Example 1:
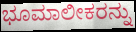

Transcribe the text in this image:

ಭೂಮಾಲೀಕರನ್ನು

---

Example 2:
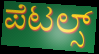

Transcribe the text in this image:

ಪೆಟಲ್ಸ್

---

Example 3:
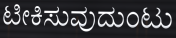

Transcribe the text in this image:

ಟೀಕಿಸುವುದುಂಟು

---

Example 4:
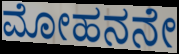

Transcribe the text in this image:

ಮೋಹನನೇ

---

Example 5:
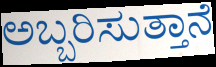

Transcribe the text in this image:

ಅಬ್ಬರಿಸುತ್ತಾನೆ